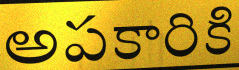
అపకారికి